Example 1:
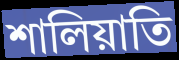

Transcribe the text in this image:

শালিয়াতি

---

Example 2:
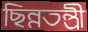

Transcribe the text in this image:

ছিন্নতন্ত্রী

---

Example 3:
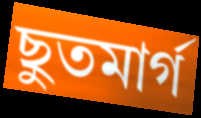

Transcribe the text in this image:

ছুতমার্গ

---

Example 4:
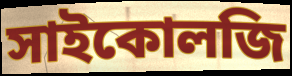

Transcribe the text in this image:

সাইকোলজি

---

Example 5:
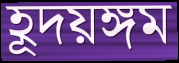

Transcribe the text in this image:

হূদয়ঙ্গম